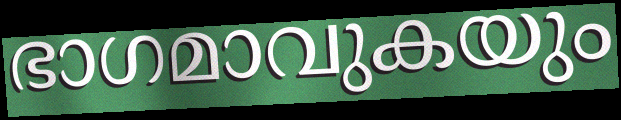
ഭാഗമാവുകയും